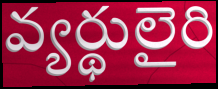
వ్యర్థులైరి